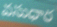
వసుధార